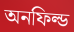
অনফিল্ড